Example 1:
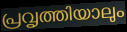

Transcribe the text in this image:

പ്രവൃത്തിയാലും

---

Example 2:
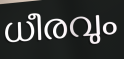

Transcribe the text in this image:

ധീരവും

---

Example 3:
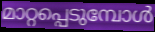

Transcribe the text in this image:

മാറ്റപ്പെടുമ്പോൾ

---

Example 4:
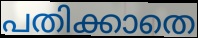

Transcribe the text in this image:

പതിക്കാതെ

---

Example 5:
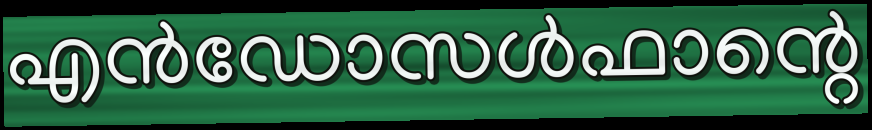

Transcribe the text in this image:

എൻഡോസൾഫാന്റെ